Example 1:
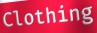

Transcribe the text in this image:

Clothing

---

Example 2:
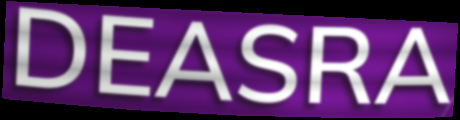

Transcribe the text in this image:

DEASRA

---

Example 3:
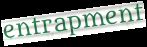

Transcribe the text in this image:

entrapment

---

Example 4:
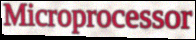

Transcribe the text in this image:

Microprocessor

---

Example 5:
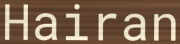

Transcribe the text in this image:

Hairan